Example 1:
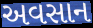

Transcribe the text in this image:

અવસાન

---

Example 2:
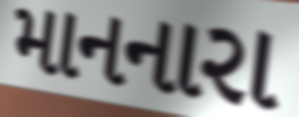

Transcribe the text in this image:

માનનારા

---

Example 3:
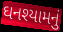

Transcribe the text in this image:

ઘનશ્યામનું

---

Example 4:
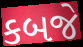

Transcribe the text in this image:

કબજે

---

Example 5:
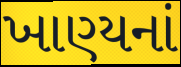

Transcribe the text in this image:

ખાણ્યનાં